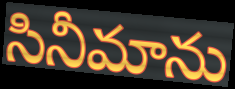
సినీమాను